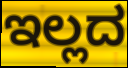
ಇಲ್ಲದ